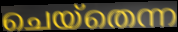
ചെയ്‌തെന്ന